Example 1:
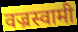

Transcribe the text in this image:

वज्रस्वामी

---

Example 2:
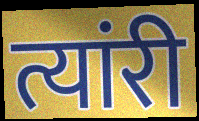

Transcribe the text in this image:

त्यांरी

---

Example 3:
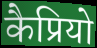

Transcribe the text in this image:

कैप्रियो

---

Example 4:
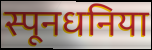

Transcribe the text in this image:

स्पूनधनिया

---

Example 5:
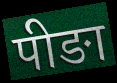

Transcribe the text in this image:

पीङा